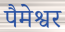
पैमेश्वर